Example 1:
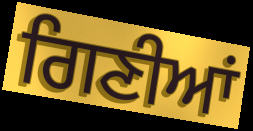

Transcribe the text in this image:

ਗਿਣੀਆਂ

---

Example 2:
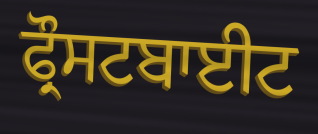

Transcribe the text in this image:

ਫ੍ਰੌਸਟਬਾਈਟ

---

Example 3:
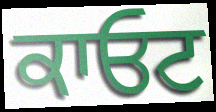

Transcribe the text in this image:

ਕਾਓਟ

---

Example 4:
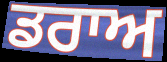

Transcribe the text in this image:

ਡਰਾਅ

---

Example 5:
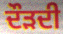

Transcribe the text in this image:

ਦੌੜਦੀ